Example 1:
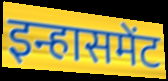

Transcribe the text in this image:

इन्हासमेंट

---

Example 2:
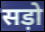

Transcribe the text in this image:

सड़ो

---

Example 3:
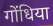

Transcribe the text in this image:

गोंधिया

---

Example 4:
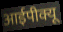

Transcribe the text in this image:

आईपीक्यू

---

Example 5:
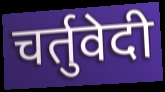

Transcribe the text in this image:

चर्तुवेदी